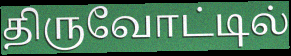
திருவோட்டில்